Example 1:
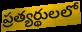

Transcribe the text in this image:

ప్రత్యర్థులలో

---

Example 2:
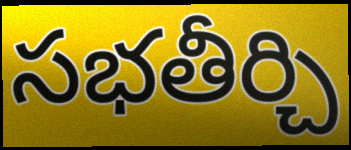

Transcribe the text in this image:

సభతీర్చి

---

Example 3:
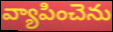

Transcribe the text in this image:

వ్యాపించెను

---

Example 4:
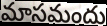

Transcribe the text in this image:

మాసమందు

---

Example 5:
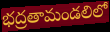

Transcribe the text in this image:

భద్రతామండలిలో